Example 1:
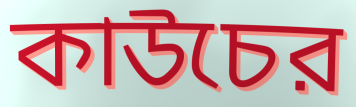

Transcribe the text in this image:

কাউচের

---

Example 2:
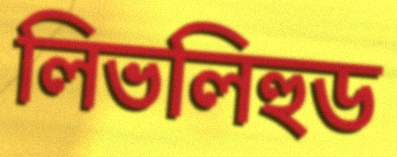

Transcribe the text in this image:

লিভলিহুড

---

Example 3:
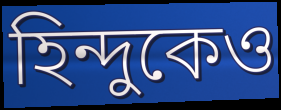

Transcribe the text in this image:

হিন্দুকেও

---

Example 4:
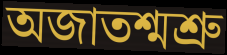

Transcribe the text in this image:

অজাতশ্মশ্রু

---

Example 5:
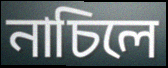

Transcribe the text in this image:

নাচিলে